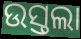
ଉସ୍ତଲା